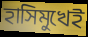
হাসিমুখেই